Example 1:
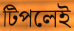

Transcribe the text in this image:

টিপলেই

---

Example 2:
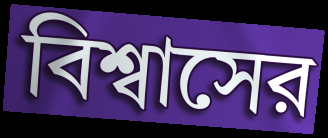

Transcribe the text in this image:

বিশ্বাসের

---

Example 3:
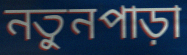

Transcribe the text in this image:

নতুনপাড়া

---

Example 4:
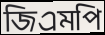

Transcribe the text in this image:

জিএমপি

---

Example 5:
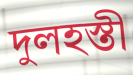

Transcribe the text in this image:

দুলহস্তী